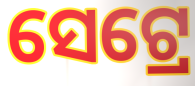
ସେଟ୍ରେ